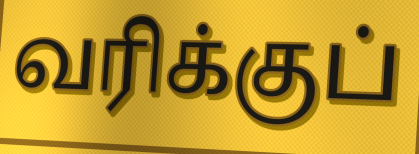
வரிக்குப்